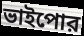
ভাইপোর